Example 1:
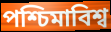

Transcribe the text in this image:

পশ্চিমাবিশ্ব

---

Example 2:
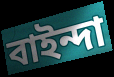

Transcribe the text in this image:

বাইন্দা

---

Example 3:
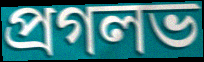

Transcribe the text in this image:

প্রগলভ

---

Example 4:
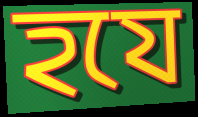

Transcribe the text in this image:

হযে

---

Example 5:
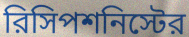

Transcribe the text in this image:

রিসিপশনিস্টের